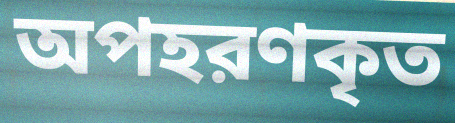
অপহরণকৃত